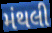
મંથલી